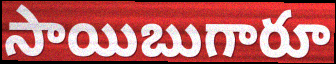
సాయిబుగారూ